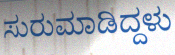
ಸುರುಮಾಡಿದ್ದಳು